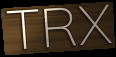
TRX